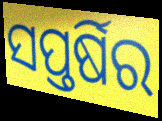
ସପ୍ତର୍ଷିର